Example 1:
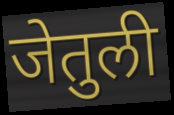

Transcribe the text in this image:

जेतुली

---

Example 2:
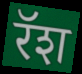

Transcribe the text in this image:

रॅश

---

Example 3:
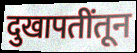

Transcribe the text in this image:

दुखापतींतून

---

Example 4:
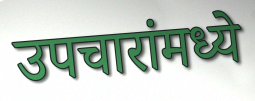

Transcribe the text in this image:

उपचारांमध्ये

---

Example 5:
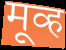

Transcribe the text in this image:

मूव्ह